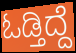
ಓಡ್ತಿದ್ದೆ